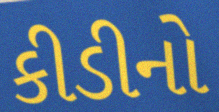
કીડીનો